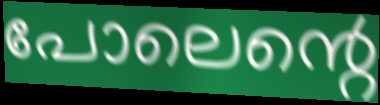
പോലെന്റെ